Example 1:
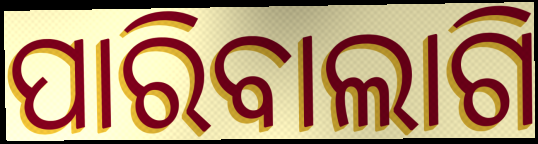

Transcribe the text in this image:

ପାରିବାଲାଗି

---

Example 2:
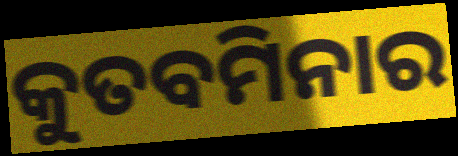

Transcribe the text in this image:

କୁତବମିନାର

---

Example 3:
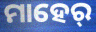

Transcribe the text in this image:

ମାହେର୍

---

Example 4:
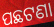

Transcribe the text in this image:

ପଛଟଣା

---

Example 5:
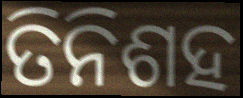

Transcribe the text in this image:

ତିନିଶହ